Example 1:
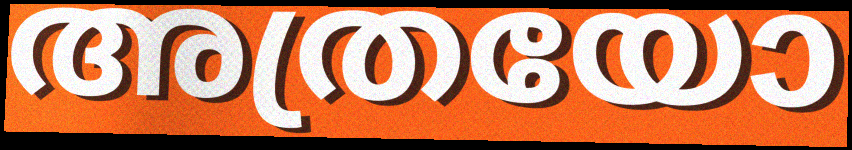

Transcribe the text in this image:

അത്രയോ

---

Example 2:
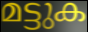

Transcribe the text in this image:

മട്ടുക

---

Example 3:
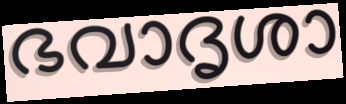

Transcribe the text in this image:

ഭവാദൃശാ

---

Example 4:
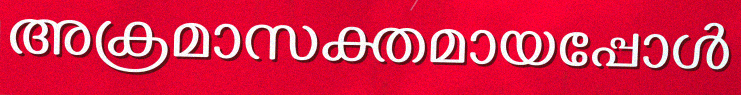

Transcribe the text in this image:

അക്രമാസക്തമായപ്പോൾ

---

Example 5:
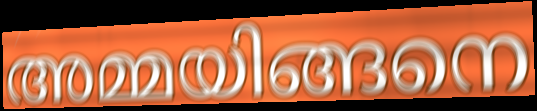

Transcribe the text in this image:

അമ്മയിങ്ങനെ